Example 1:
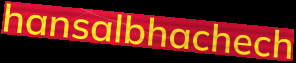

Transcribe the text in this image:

hansalbhachech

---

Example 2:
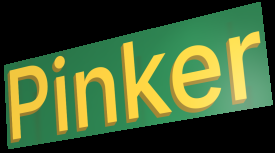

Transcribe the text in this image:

Pinker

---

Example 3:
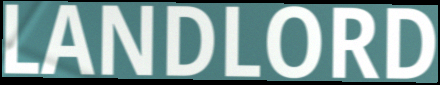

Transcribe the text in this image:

LANDLORD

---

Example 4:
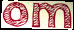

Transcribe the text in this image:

om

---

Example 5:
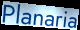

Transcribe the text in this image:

Planaria